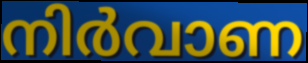
നിർവാണ